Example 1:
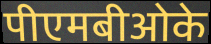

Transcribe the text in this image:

पीएमबीओके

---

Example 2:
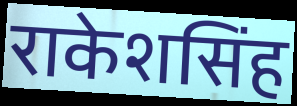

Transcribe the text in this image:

राकेशसिंह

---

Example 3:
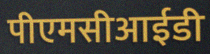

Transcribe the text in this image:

पीएमसीआईडी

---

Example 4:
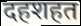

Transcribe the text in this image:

दहशहत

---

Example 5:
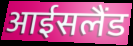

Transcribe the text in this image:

आईसलैंड